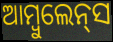
ଆମ୍ବୁଲେନ୍‌ସ